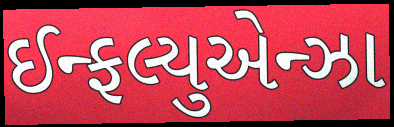
ઈન્ફલ્યુએન્ઝા